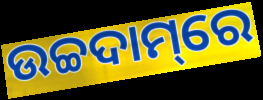
ଉଚ୍ଚଦାମ୍‌ରେ